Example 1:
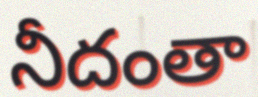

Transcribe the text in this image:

నీదంతా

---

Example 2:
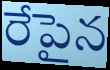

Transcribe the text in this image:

రేపైన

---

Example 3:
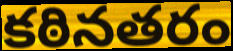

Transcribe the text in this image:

కఠినతరం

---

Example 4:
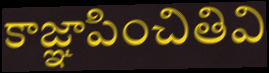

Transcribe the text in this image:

కాజ్ఞాపించితివి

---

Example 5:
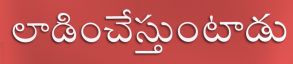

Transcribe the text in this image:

లాడించేస్తుంటాడు